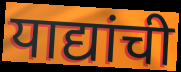
याद्यांची